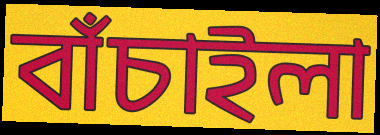
বাঁচাইলা